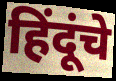
हिंदूंचे